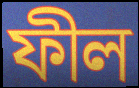
ফীল